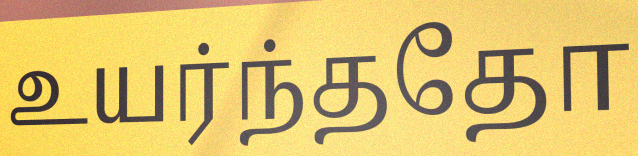
உயர்ந்ததோ